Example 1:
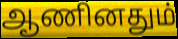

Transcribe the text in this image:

ஆணினதும்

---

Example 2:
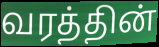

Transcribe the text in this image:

வரத்தின்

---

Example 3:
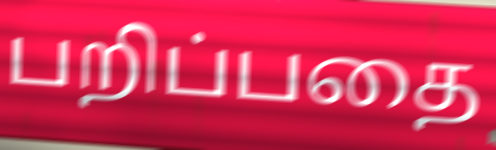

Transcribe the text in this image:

பறிப்பதை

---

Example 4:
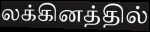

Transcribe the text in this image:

லக்கினத்தில்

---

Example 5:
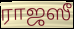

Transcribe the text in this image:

ராஜஸீ